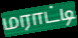
மராட்டி